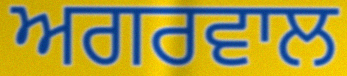
ਅਗਰਵਾਲ